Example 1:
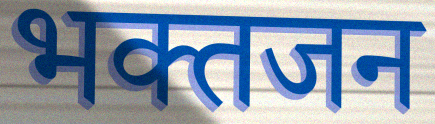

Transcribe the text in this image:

भक्तजन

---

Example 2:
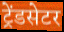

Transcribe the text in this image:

ट्रेंडसेटर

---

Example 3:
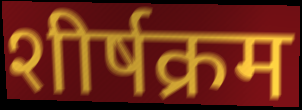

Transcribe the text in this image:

शीर्षक्रम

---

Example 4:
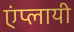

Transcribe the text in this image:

एंप्लायी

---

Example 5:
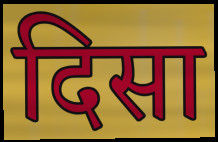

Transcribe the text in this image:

दिसा